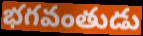
భగవంతుడు